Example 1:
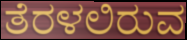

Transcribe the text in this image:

ತೆರಳಲಿರುವ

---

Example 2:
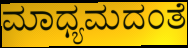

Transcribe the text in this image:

ಮಾಧ್ಯಮದಂತೆ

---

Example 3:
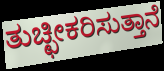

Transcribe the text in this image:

ತುಚ್ಛೀಕರಿಸುತ್ತಾನೆ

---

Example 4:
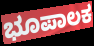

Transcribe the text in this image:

ಭೂಪಾಲಕ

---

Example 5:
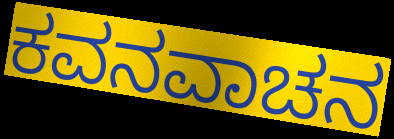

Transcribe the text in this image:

ಕವನವಾಚನ